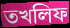
তখলিফ